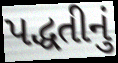
પદ્ધતીનું